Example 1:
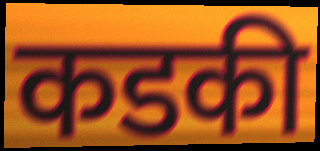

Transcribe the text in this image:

कडकी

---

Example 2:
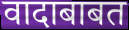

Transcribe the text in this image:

वादाबाबत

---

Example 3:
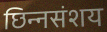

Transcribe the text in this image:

छिन्नसंशय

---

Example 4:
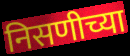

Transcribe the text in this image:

निसणीच्या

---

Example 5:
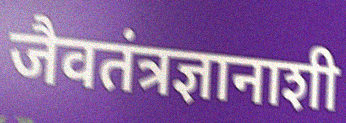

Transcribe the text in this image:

जैवतंत्रज्ञानाशी